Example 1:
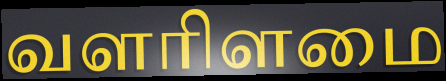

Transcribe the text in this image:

வளரிளமை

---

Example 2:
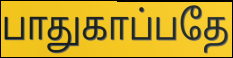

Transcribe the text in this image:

பாதுகாப்பதே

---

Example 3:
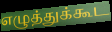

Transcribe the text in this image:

எழுத்துக்கூட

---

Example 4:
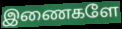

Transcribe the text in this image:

இணைகளே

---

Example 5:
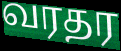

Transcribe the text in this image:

வரதர